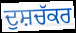
ਦੁਸ਼ਚੱਕਰ